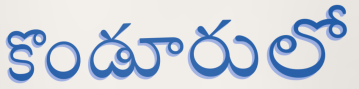
కొండూరులో